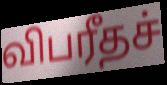
விபரீதச்